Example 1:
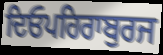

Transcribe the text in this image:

ਦਿਓਪਹਿਰਾਬੁਰਜ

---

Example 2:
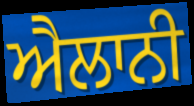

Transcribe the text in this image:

ਐਲਾਨੀ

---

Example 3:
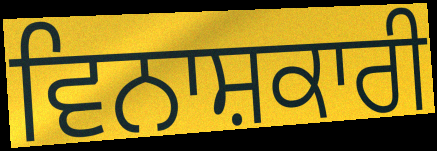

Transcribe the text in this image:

ਵਿਨਾਸ਼ਕਾਰੀ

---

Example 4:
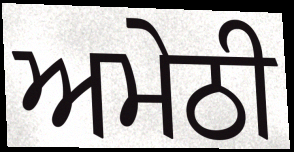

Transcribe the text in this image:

ਅਮੇਠੀ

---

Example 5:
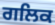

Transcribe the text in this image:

ਗਲਿਕ